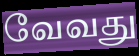
வேவது